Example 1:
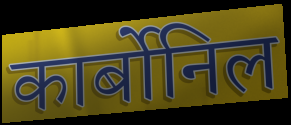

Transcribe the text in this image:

कार्बोनिल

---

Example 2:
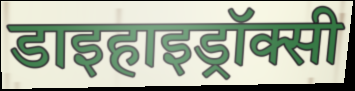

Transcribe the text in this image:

डाइहाइड्रॉक्सी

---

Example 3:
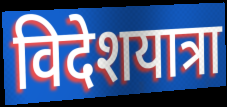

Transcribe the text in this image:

विदेशयात्रा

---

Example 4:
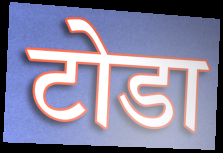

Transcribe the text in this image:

टोडा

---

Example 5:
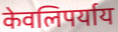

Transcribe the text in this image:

केवलिपर्याय